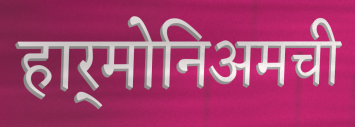
हार्मोनिअमची